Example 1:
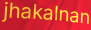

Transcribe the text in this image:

jhakalnan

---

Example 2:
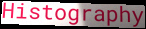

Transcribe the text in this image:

Histography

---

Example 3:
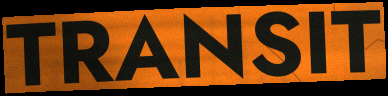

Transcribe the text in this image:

TRANSIT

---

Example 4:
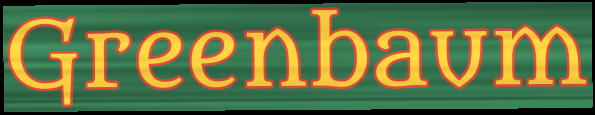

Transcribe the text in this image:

Greenbaum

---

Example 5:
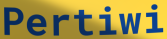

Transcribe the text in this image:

Pertiwi